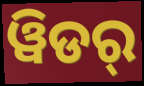
ୱିଡର୍